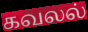
கவலல்